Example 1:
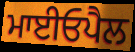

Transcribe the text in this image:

ਮਾਈਓਪੈਲ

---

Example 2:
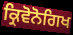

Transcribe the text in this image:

ਕ੍ਰਿਵੋਨੋਗਿਖ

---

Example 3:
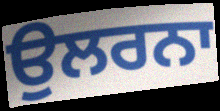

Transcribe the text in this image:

ਉਲਰਨਾ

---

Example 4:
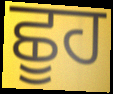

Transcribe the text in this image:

ਛੂਹ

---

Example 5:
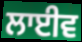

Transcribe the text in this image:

ਲਾਈਵ